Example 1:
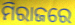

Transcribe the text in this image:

ମିରାଜରେ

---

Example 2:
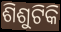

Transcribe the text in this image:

ଶିଶୁଟିକି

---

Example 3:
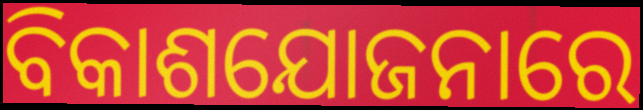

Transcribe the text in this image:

ବିକାଶଯୋଜନାରେ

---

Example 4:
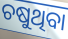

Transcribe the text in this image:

ଚଷୁଥିବା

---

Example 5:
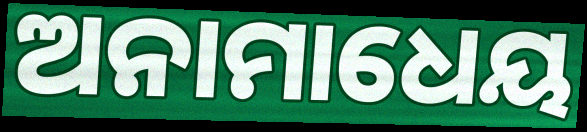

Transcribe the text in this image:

ଅନାମାଧେୟ